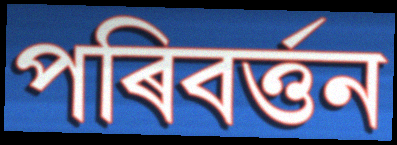
পৰিবৰ্ত্তন